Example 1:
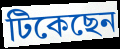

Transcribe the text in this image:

টিকেছেন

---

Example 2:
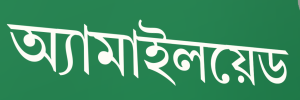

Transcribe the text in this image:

অ্যামাইলয়েড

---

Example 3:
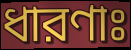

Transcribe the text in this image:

ধারণাঃ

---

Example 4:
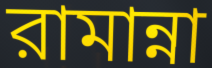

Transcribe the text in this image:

রামান্না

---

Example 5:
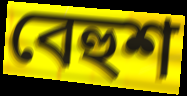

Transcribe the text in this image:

বেহুশ